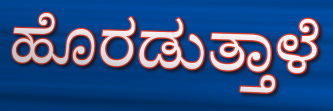
ಹೊರಡುತ್ತಾಳೆ